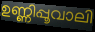
ഉണ്ണിപ്പൂവാലി